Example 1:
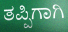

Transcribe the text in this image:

ತಪ್ಪಿಗಾಗಿ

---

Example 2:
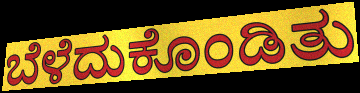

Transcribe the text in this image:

ಬೆಳೆದುಕೊಂಡಿತು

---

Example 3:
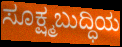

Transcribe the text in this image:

ಸೂಕ್ಷ್ಮಬುದ್ಧಿಯ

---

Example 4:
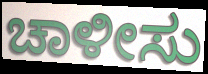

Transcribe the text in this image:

ಚಾಳೀಸು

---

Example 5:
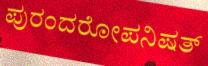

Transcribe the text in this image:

ಪುರಂದರೋಪನಿಷತ್